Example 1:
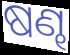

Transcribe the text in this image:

ଷଣ୍ଢ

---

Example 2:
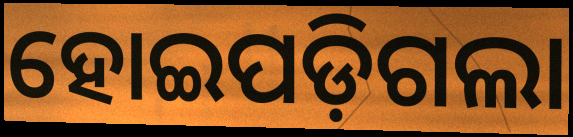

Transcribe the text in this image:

ହୋଇପଡ଼ିଗଲା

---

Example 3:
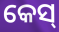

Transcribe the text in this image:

କେସ୍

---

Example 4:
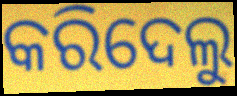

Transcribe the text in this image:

କରିଦେଲୁ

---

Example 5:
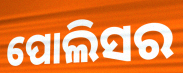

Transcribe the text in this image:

ପୋଲିସର